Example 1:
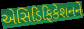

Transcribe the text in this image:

એસિડિફિકેશનને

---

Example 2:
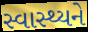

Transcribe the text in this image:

સ્વાસ્થ્યને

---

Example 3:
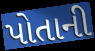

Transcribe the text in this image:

પોતાની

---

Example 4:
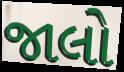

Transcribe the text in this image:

જાલો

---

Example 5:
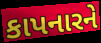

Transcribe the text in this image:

કાપનારને